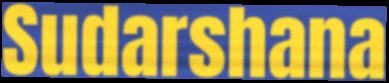
Sudarshana